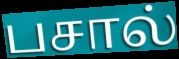
பசால்